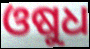
ଓଷୁଧ